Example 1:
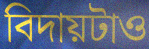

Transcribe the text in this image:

বিদায়টাও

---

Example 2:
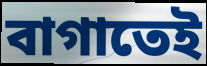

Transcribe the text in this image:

বাগাতেই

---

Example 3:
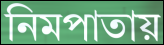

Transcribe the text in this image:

নিমপাতায়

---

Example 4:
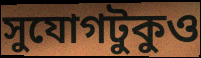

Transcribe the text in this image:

সুযোগটুকুও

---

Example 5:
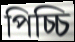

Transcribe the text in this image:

পিচ্চি